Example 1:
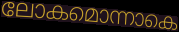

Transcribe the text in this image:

ലോകമൊന്നാകെ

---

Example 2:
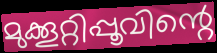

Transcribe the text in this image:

മുക്കൂറ്റിപ്പൂവിന്റെ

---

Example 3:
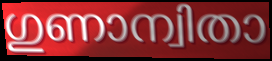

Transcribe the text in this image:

ഗുണാന്വിതാ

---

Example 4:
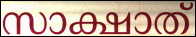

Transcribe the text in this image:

സാക്ഷാത്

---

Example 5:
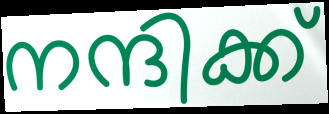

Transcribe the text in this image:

നന്ദിക്ക്